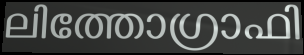
ലിത്തോഗ്രാഫി